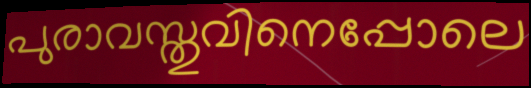
പുരാവസ്തുവിനെപ്പോലെ